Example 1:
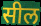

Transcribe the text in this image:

सील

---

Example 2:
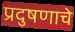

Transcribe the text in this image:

प्रदुषणाचे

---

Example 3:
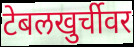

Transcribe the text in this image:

टेबलखुर्चीवर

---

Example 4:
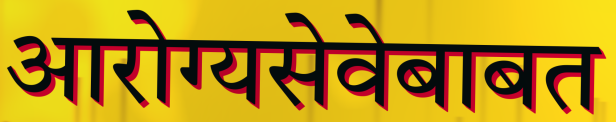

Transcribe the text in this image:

आरोग्यसेवेबाबत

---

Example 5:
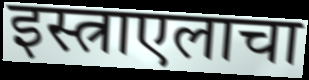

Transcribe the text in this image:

इस्त्राएलाचा